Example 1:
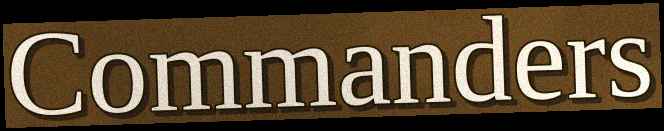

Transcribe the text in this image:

Commanders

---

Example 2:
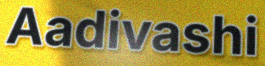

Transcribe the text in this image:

Aadivashi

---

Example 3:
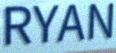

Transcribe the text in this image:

RYAN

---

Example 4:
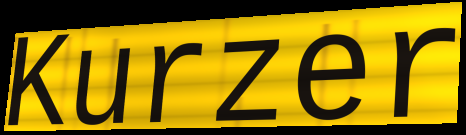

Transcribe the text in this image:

Kurzer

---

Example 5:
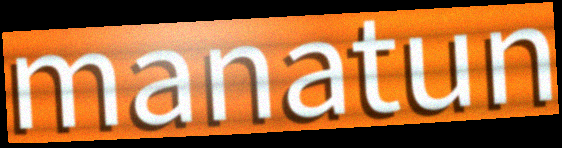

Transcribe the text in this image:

manatun